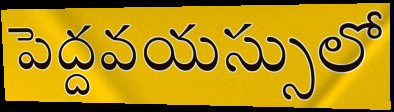
పెద్దవయస్సులో